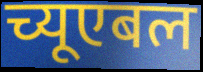
च्यूएबल